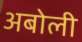
अबोली